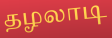
தழலாடி